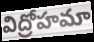
విద్రోహమా